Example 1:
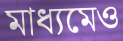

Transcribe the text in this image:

মাধ্যমেও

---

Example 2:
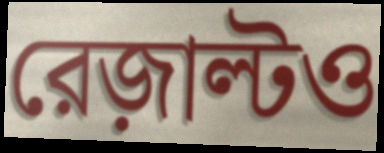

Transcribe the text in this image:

রেজ়াল্টও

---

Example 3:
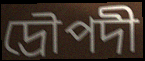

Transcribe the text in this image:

দ্রৌপদী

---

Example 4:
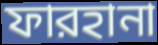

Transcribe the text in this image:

ফারহানা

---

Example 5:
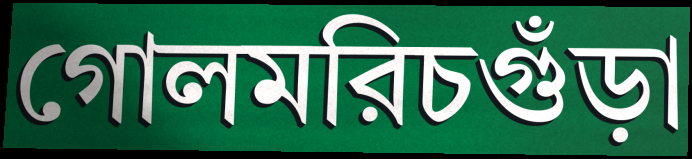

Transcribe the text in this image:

গোলমরিচগুঁড়া